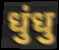
धुंधु